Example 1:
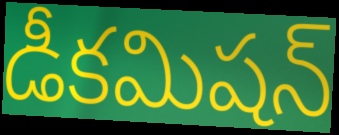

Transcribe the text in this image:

డీకమిషన్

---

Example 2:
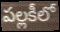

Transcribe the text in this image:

పల్లకీలో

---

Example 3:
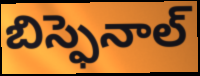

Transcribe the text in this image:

బిస్ఫెనాల్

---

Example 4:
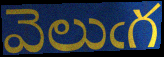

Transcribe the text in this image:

వెలుఁగ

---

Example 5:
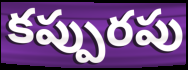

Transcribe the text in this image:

కప్పురపు